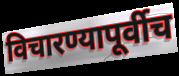
विचारण्यापूर्वीच